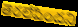
తెరలేపిందని